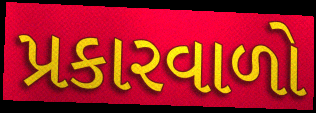
પ્રકારવાળો